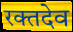
रक्तदेव